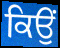
ਕਿਉੰ